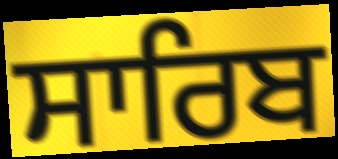
ਸਾਰਿਬ